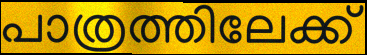
പാത്രത്തിലേക്ക്